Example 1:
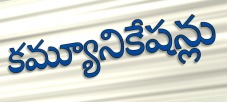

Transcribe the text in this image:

కమ్యూనికేషన్లు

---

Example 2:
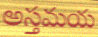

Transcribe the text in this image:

అస్తమయ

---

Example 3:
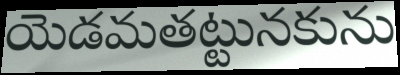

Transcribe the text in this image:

యెడమతట్టునకును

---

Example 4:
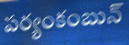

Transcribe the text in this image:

పర్యంకంబున్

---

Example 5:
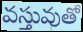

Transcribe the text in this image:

వస్తువుతో